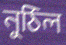
নুঠিল